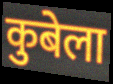
कुबेला